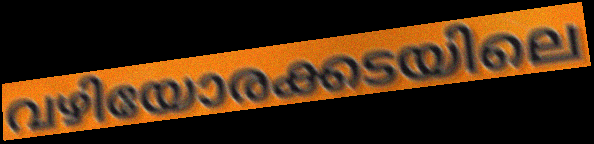
വഴിയോരക്കടയിലെ